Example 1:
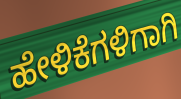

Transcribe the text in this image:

ಹೇಳಿಕೆಗಳಿಗಾಗಿ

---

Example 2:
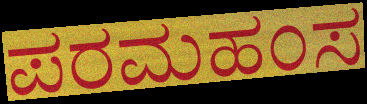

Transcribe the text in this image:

ಪರಮಹಂಸ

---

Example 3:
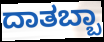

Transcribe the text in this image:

ದಾತಬ್ಬಾ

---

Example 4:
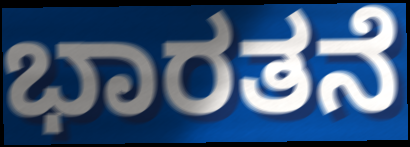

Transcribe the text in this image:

ಭಾರತನೆ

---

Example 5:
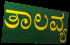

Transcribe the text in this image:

ತಾಲವ್ಯ